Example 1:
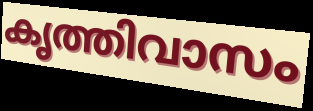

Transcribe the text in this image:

കൃത്തിവാസം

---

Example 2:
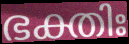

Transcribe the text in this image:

ഭക്തിഃ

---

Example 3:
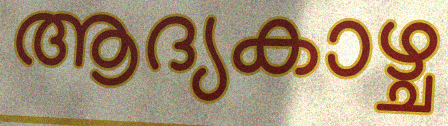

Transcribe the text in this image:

ആദ്യകാഴ്ച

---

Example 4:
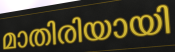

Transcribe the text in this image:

മാതിരിയായി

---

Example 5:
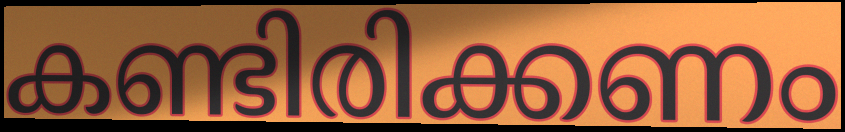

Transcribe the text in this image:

കണ്ടിരിക്കണം